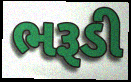
ભરૂડી